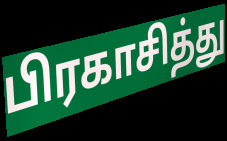
பிரகாசித்து